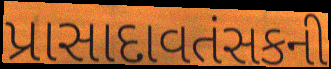
પ્રાસાદાવતંસકની